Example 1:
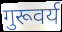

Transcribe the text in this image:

गुरूवर्य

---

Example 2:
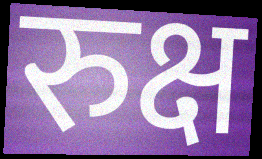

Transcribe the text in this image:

रुक्ष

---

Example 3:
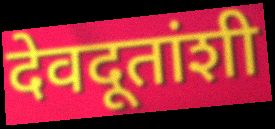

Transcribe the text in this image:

देवदूतांशी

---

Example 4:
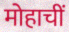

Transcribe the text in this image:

मोहाचीं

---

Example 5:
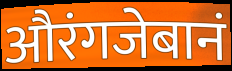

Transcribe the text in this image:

औरंगजेबानं